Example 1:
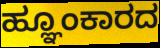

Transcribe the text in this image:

ಹ್ಞೂಂಕಾರದ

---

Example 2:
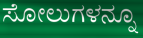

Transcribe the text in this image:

ಸೋಲುಗಳನ್ನೂ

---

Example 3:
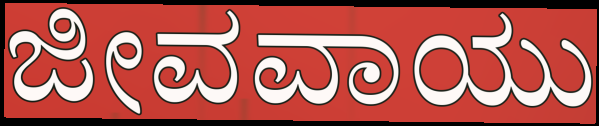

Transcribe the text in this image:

ಜೀವವಾಯು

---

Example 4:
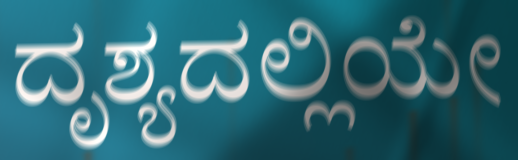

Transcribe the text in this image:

ದೃಶ್ಯದಲ್ಲಿಯೇ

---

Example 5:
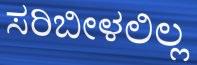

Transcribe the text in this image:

ಸರಿಬೀಳಲಿಲ್ಲ